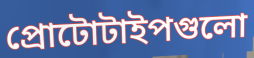
প্রোটোটাইপগুলো